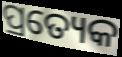
ପ୍ରତ୍ୟେକ